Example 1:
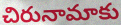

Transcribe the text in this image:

చిరునామాకు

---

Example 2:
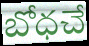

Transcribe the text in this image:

బోధచే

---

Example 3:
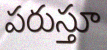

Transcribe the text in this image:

పరుస్తూ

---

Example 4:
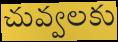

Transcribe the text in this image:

చువ్వలకు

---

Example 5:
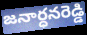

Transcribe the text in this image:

జనార్ధనరెడ్డి